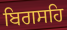
ਬਿਗਸਹਿ